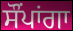
ਸੌਂਪਾਂਗਾ